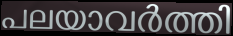
പലയാവർത്തി